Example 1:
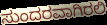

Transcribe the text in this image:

ಸುಂದರವಾಗಿರಲಿ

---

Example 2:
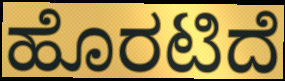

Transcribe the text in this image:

ಹೊರಟಿದೆ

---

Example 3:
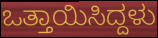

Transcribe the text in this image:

ಒತ್ತಾಯಿಸಿದ್ದಳು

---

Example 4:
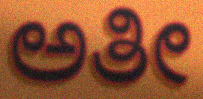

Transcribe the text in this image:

ಅತೀ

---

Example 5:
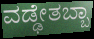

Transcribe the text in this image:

ವಡ್ಢೇತಬ್ಬಾ